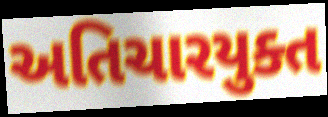
અતિચારયુક્ત